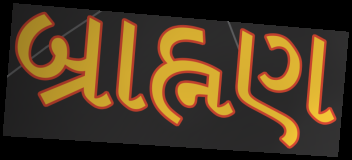
બ્રાહ્નણ